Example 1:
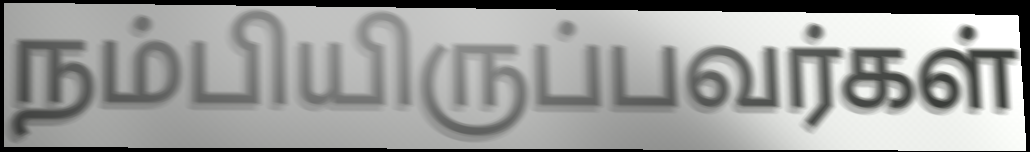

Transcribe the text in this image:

நம்பியிருப்பவர்கள்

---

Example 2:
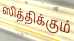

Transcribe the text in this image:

ஸித்திக்கும்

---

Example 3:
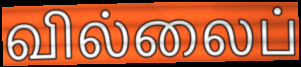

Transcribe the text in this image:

வில்லைப்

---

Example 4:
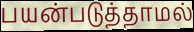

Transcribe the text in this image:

பயன்படுத்தாமல்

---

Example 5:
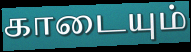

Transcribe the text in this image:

காடையும்